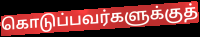
கொடுப்பவர்களுக்குத்